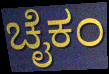
ಚೈಕಂ